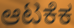
ಆಟಕೆಕ